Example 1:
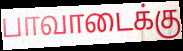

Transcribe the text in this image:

பாவாடைக்கு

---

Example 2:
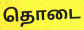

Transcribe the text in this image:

தொடை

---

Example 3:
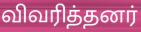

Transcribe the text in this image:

விவரித்தனர்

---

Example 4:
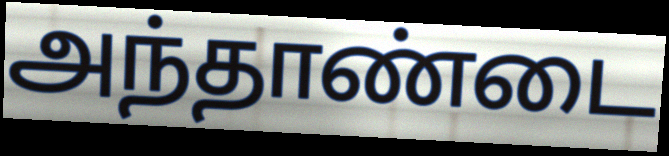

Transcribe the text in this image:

அந்தாண்டை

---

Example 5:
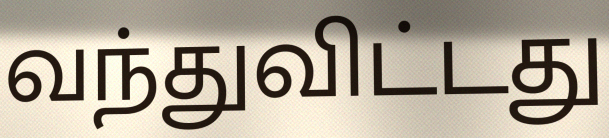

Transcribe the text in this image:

வந்துவிட்டது